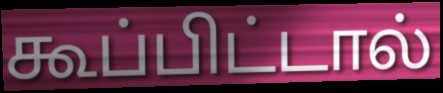
கூப்பிட்டால்